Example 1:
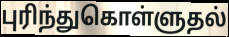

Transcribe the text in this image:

புரிந்துகொள்ளுதல்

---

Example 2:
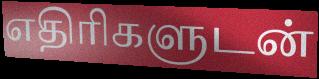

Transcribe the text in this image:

எதிரிகளுடன்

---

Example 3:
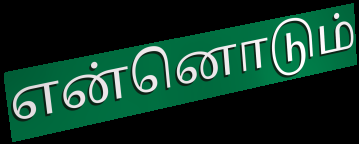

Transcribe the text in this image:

என்னொடும்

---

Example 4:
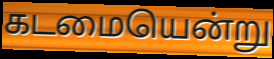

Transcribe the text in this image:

கடமையென்று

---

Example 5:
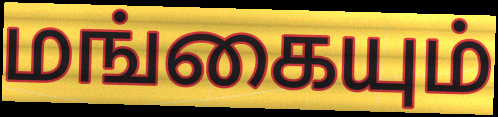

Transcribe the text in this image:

மங்கையும்